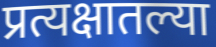
प्रत्यक्षातल्या